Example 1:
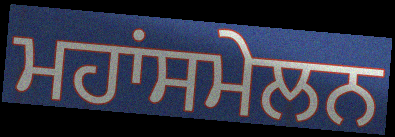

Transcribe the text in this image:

ਮਹਾਂਸਮੇਲਨ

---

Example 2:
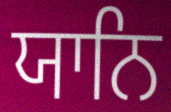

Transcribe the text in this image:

ਯਾਨਿ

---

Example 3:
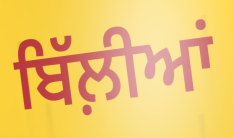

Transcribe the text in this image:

ਬਿੱਲ਼ੀਆਂ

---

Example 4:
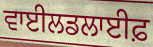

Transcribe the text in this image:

ਵਾਈਲਡਲਾਈਫ਼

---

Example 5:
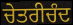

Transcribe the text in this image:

ਚੇਤਰੀਚੰਦ